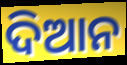
ଦିଆନ